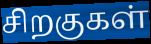
சிறகுகள்